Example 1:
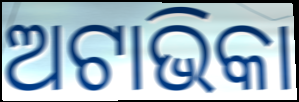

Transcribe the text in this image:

ଅଟାଭିକା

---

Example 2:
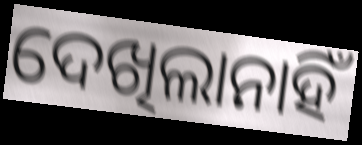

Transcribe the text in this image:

ଦେଖିଲାନାହିଁ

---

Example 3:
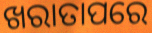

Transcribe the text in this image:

ଖରାତାପରେ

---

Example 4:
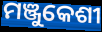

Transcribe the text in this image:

ମଞ୍ଜୁକେଶୀ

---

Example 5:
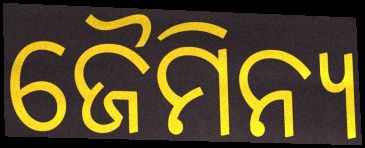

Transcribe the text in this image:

ଜୈମିନ୍ୟ